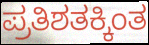
ಪ್ರತಿಶತಕ್ಕಿಂತ